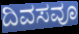
ದಿವಸವೂ